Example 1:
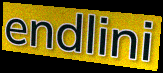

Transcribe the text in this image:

endlini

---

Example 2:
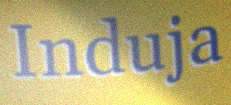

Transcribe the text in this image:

Induja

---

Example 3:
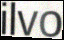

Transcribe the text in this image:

ilvo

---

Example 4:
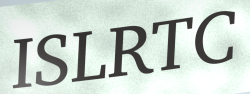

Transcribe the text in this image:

ISLRTC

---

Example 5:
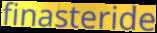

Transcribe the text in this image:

finasteride